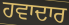
ਹਵਾਦਾਰ